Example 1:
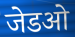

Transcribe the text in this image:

जेडओ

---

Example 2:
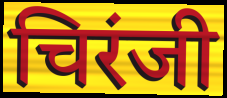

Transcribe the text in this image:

चिरंजी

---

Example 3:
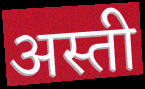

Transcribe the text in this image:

अस्ती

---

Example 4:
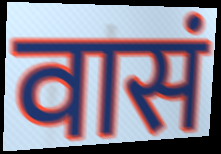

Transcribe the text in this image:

वासं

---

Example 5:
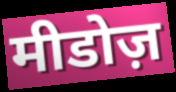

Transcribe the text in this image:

मीडोज़